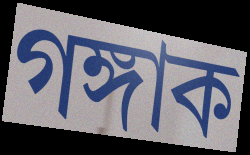
গঙ্গাক